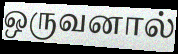
ஒருவனால்